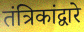
तंत्रिकांद्वारे